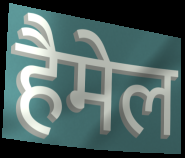
हैमेल